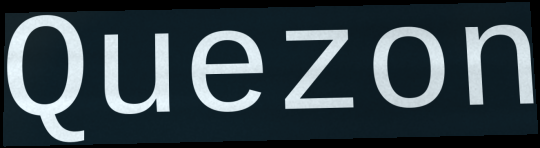
Quezon